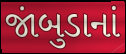
જાંબુડાનાં